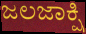
ಜಲಜಾಕ್ಷಿ